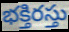
భక్తిరస్తు